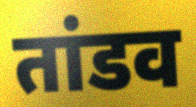
तांडव